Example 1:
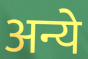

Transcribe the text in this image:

अन्ये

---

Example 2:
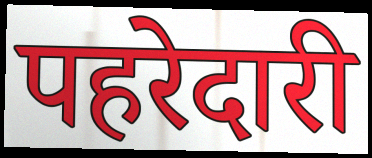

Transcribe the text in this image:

पहरेदारी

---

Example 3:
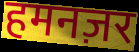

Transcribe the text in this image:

हमनज़र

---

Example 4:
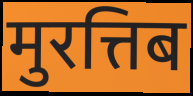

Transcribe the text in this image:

मुरत्तिब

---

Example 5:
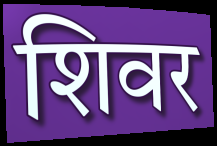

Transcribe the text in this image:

शिवर